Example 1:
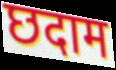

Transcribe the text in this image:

छदाम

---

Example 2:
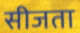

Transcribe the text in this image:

सीजता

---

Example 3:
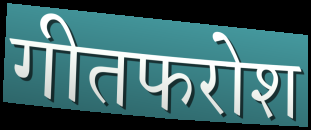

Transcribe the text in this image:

गीतफरोश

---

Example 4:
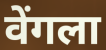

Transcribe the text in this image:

वेंगला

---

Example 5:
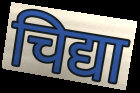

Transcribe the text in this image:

चिद्या